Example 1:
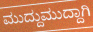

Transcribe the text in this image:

ಮುದ್ದುಮುದ್ದಾಗಿ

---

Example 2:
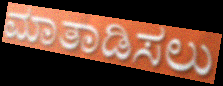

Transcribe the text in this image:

ಮಾತಾಡಿಸಲು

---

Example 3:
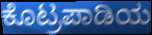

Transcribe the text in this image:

ಕೊಟ್ರಪಾಡಿಯ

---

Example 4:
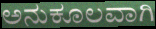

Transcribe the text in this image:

ಅನುಕೂಲವಾಗಿ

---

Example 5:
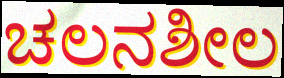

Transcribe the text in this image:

ಚಲನಶೀಲ